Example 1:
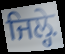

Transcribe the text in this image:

ਜਿਲ਼੍ਹੇ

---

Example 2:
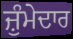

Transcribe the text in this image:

ਜ਼ੁੰਮੇਦਾਰ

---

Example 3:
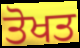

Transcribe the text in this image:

ਤੋਖਤ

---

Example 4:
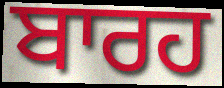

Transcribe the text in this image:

ਬਾਰਹ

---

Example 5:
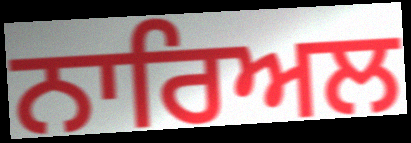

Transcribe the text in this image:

ਨਾਰਿਅਲ